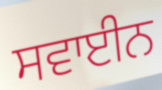
ਸਵਾਈਨ